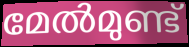
മേൽമുണ്ട്